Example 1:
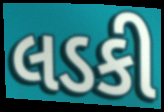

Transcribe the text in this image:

લડકી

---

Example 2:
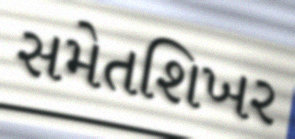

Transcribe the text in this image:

સમેતશિખર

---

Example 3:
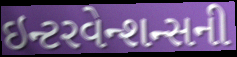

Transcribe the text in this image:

ઇન્ટરવેન્શન્સની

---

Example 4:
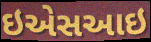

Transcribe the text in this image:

ઇએસઆઇ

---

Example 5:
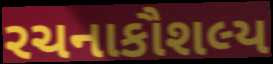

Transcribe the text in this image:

રચનાકૌશલ્ય